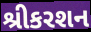
શ્રીકરશન